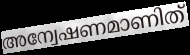
അന്വേഷണമാണിത്